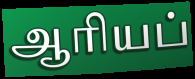
ஆரியப்